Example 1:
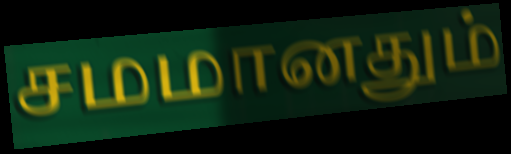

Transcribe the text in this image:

சமமானதும்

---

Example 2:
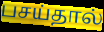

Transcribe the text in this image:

பசய்தால்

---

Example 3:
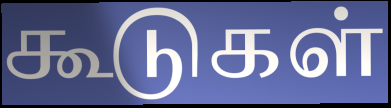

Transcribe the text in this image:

கூடுகள்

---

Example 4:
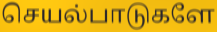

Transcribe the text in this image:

செயல்பாடுகளே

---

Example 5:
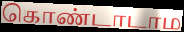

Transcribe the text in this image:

கொண்டாடாம